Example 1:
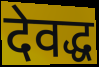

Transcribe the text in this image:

देवद्ध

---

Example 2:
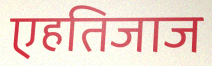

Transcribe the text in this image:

एहतिजाज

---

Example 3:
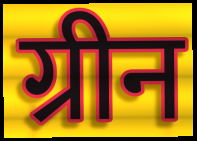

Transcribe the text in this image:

ग्रीन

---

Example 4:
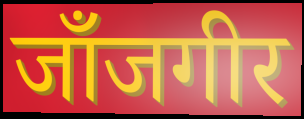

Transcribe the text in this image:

जाँजगीर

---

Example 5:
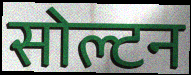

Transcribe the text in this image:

सोल्टन